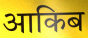
आकिब